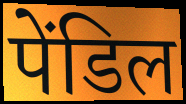
पेंडिल